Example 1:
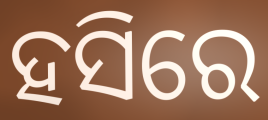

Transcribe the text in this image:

ହସିରେ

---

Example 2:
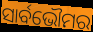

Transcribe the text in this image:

ସାର୍ବଭୌମର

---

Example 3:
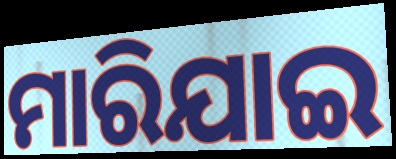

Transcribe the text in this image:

ମାରିଯାଇ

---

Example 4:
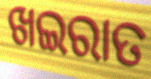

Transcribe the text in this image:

ଖଇରାତ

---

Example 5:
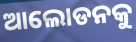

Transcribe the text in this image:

ଆଲୋଡନକୁ